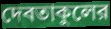
দেবতাকুলের